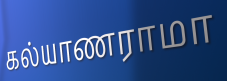
கல்யாணராமா